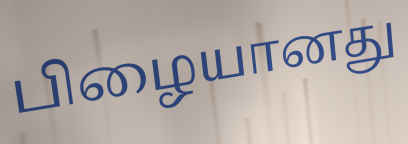
பிழையானது